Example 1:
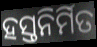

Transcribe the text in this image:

ହସ୍ତନିର୍ମିତ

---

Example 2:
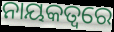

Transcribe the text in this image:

ନାୟକତ୍ବରେ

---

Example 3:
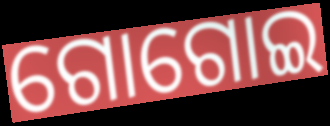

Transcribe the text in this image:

ଗୋଗୋଇ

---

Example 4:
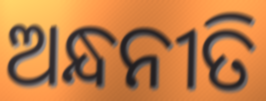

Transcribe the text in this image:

ଅନ୍ଧନୀତି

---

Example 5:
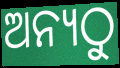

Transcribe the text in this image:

ଅନ୍ୟଠୁ